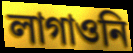
লাগাওনি